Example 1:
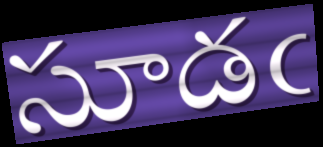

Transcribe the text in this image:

సూడఁ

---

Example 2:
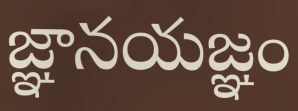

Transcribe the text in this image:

జ్ఞానయజ్ఞం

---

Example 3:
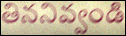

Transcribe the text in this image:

తిననివ్వండి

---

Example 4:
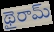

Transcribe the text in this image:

థైరామ్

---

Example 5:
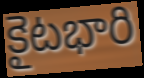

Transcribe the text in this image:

కైటభారి